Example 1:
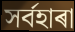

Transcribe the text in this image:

সৰ্বহাৰা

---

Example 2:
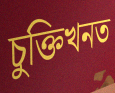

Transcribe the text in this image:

চুক্তিখনত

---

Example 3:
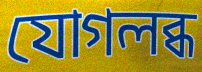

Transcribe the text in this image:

যোগলব্ধ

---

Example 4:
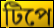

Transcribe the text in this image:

টিপে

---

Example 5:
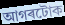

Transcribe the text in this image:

আগৰটোক